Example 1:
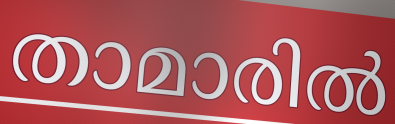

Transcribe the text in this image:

താമാരിൽ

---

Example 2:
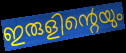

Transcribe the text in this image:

ഇരുളിന്റെയും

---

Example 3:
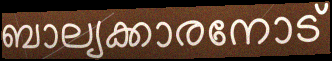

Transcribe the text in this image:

ബാല്യക്കാരനോട്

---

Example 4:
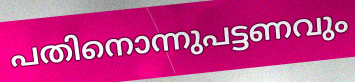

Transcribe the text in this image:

പതിനൊന്നുപട്ടണവും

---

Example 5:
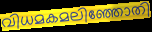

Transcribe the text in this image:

വിധമകമലിഞ്ഞോതി